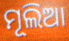
ମୂଲିଆ